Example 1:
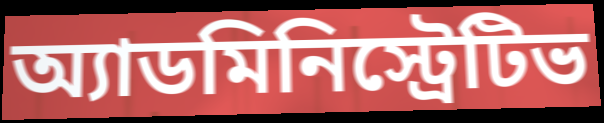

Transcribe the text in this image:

অ্যাডমিনিস্ট্রেটিভ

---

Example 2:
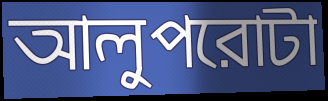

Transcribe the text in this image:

আলুপরোটা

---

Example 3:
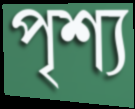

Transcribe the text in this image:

পৃশ্য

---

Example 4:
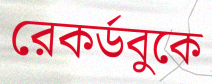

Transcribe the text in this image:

রেকর্ডবুকে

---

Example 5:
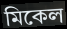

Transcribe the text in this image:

মিকেল